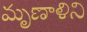
మృణాళిని